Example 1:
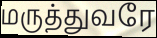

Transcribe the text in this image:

மருத்துவரே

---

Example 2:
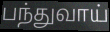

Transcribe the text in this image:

பந்துவாய்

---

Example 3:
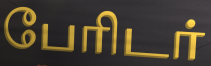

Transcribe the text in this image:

பேரிடர்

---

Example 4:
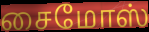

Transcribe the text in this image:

சைமோஸ்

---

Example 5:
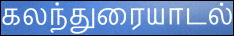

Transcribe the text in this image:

கலந்துரையாடல்